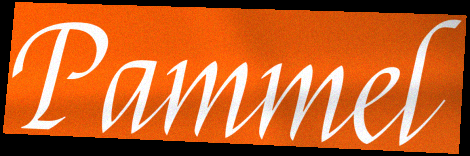
Pammel